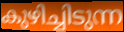
കുഴിച്ചിടുന്ന